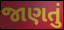
જાણતું